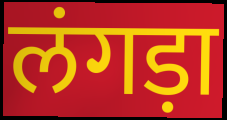
लंगड़ा